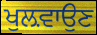
ਖੁਲ਼ਵਾਉਣ